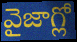
వైజాగ్లో